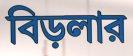
বিড়লার